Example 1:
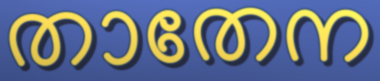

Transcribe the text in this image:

താതേന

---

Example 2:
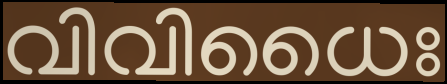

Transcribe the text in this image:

വിവിധൈഃ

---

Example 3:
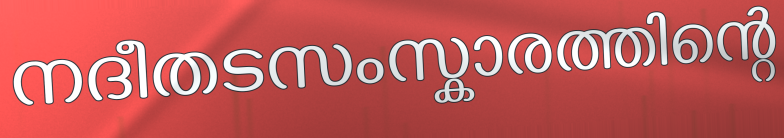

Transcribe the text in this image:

നദീതടസംസ്കാരത്തിന്റെ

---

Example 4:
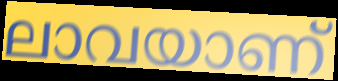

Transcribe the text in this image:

ലാവയാണ്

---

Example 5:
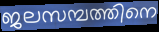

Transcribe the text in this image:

ജലസമ്പത്തിനെ